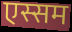
एस्सम